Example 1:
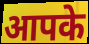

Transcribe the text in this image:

आपके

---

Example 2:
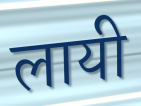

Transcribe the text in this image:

लायी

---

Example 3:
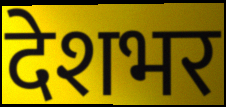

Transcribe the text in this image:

देशभर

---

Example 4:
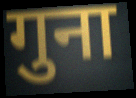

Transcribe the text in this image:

गुना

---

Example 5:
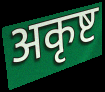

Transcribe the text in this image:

अकृष्ट